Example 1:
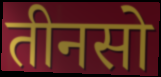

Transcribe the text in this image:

तीनसो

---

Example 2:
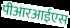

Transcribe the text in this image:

पीआरआईएस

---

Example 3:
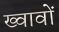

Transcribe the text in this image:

ख्वावों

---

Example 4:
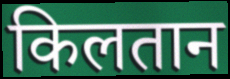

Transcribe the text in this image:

किलतान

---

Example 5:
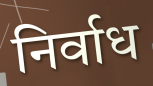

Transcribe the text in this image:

निर्वाध